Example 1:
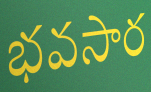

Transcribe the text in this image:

భవసార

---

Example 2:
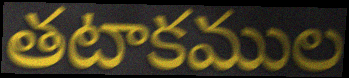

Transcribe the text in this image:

తటాకముల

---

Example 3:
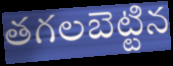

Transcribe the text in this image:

తగలబెట్టిన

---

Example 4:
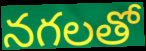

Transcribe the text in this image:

నగలతో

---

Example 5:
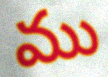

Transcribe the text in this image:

ము